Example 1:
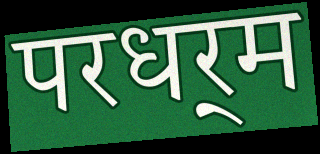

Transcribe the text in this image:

परधर्म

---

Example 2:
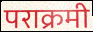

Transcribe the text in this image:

पराक्रमी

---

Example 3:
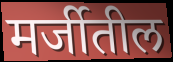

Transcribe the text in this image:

मर्जीतील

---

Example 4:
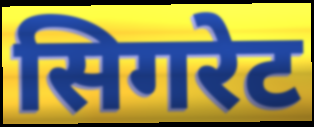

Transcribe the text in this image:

सिगरेट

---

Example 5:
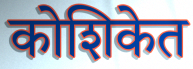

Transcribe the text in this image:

कोशिकेत